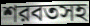
শরবতসহ